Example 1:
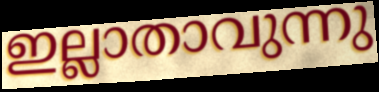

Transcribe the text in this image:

ഇല്ലാതാവുന്നു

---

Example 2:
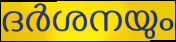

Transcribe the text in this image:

ദർശനയും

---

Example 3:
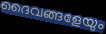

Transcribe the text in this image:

ദൈവങ്ങളേയും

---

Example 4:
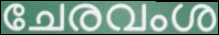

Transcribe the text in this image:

ചേരവംശ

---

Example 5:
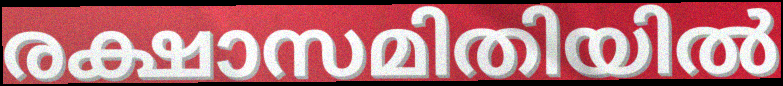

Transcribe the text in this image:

രക്ഷാസമിതിയിൽ